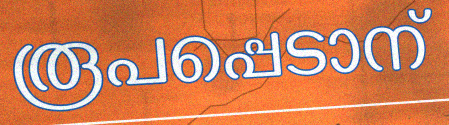
രൂപപ്പെടാന്